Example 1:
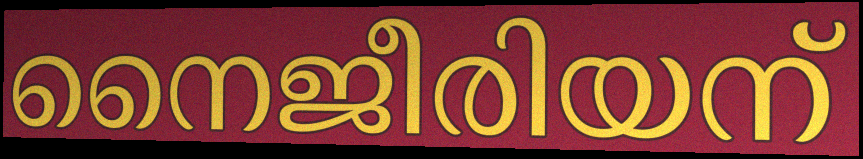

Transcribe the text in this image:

നൈജീരിയന്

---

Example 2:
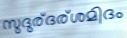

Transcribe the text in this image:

സുദുര്ദര്ശമിദം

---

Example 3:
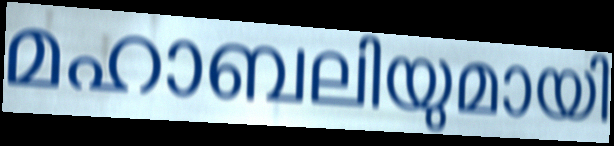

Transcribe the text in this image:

മഹാബലിയുമായി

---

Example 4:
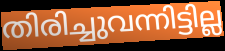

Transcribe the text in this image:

തിരിച്ചുവന്നിട്ടില്ല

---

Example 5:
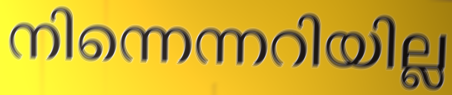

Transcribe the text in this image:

നിന്നെന്നറിയില്ല